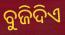
ବୁଜିଦିଏ